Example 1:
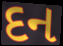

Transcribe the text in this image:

દન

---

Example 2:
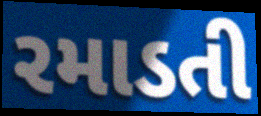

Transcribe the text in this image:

રમાડતી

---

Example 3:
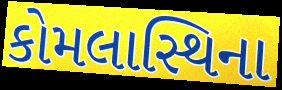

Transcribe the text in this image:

કોમલાસ્થિના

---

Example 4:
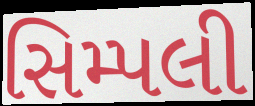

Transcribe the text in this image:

સિમ્પલી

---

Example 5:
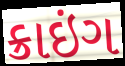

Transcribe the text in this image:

ક્રાઇંગ